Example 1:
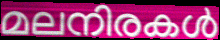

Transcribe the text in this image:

മലനിരകൾ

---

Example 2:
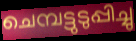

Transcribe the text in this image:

ചെമ്പട്ടുടുപ്പിച്ചു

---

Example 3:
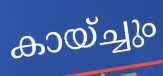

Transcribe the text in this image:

കായ്ച്ചും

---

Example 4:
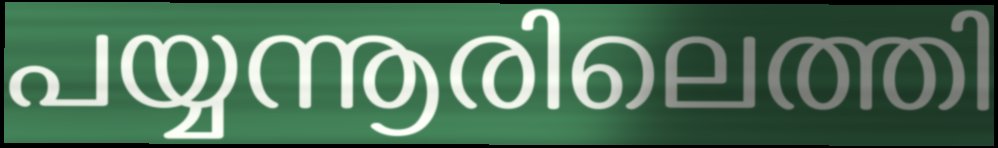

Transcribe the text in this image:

പയ്യന്നൂരിലെത്തി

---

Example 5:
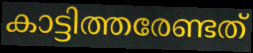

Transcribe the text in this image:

കാട്ടിത്തരേണ്ടത്